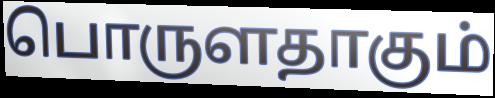
பொருளதாகும்